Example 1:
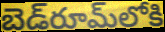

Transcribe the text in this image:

బెడ్‌రూమ్‌లోకి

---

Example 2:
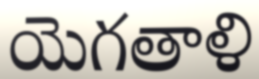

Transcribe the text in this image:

యెగతాళి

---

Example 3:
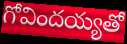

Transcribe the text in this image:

గోవిందయ్యతో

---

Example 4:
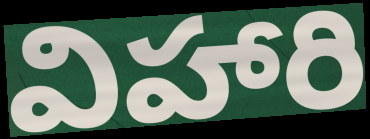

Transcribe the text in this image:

విహారి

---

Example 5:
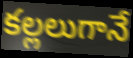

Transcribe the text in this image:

కల్లలుగానే